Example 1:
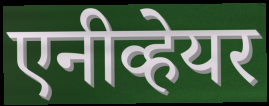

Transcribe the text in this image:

एनीव्हेयर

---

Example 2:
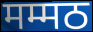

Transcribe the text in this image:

मम्मठ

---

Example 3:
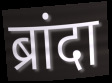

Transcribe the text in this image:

ब्रांदा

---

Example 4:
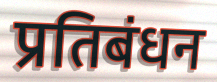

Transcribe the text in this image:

प्रतिबंधन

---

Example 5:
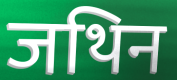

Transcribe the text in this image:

जथिन